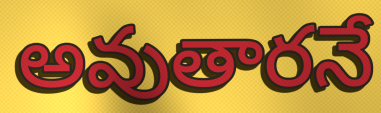
అవుతారనే